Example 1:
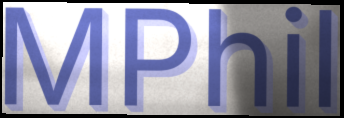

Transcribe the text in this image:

MPhil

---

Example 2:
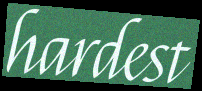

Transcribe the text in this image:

hardest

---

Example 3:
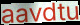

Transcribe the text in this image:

aavdtu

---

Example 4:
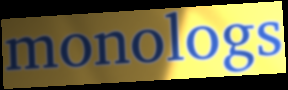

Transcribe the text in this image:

monologs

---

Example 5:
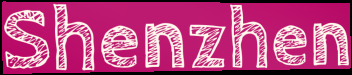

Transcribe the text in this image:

Shenzhen